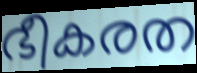
ഭീകരത